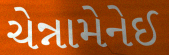
ચેન્નામેનેઈ